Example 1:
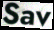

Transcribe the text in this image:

Sav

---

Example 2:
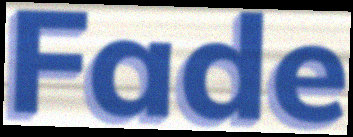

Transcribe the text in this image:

Fade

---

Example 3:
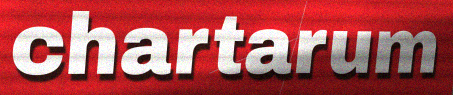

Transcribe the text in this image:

chartarum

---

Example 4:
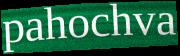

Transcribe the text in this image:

pahochva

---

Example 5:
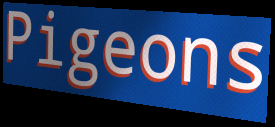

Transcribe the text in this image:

Pigeons